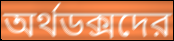
অর্থডক্সদের